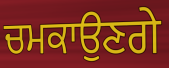
ਚਮਕਾਉਣਗੇ